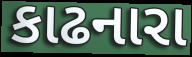
કાઢનારા